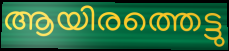
ആയിരത്തെട്ടു